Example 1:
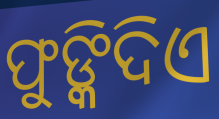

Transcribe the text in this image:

ଫୁଙ୍କିଦିଏ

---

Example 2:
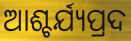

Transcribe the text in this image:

ଆଶ୍ଚର୍ଯ୍ୟପ୍ରଦ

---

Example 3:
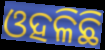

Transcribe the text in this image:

ଓହଳିଛି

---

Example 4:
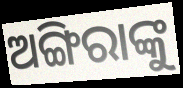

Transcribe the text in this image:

ଅଙ୍ଗିରାଙ୍କୁ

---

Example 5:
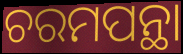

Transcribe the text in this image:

ଚରମପନ୍ଥା